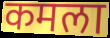
कमला